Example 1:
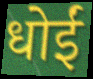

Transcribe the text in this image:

धोईं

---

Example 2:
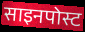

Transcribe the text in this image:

साइनपोस्ट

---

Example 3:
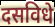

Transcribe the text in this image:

दसविधे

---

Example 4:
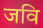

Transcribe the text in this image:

जवि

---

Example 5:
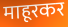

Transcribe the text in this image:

माहूरकर